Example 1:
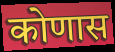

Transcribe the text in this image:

कोणास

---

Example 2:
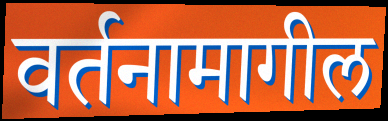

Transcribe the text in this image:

वर्तनामागील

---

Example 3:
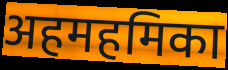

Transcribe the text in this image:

अहमहमिका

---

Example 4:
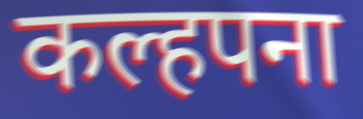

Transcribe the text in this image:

कल्हपना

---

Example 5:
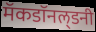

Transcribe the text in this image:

मॅकडॉनल्डनी